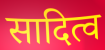
सादित्व